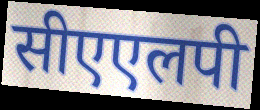
सीएएलपी